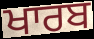
ਖਾਰਬ